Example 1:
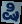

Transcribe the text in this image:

ಷಿ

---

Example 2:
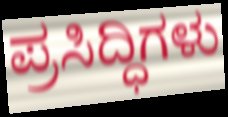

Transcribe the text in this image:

ಪ್ರಸಿದ್ಧಿಗಳು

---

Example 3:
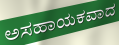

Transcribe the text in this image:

ಅಸಹಾಯಕವಾದ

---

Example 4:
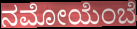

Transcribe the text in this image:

ನಮೋಯೆಂಬೆ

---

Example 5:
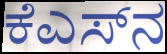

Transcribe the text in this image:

ಕೆಎಸ್‌ನ